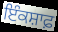
ਇੰਕਸ਼ਾਫ਼